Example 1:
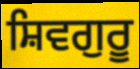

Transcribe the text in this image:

ਸ਼ਿਵਗੁਰੂ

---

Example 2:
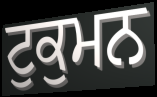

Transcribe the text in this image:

ਟੁਕੁਮਨ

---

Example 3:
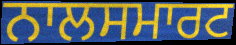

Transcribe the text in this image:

ਨਾਲਸਮਾਰਟ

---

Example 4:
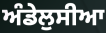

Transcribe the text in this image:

ਅੰਡੇਲੁਸੀਆ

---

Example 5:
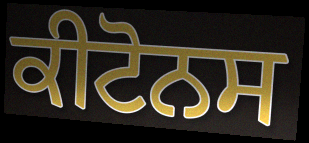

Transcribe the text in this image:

ਕੀਟੋਨਸ